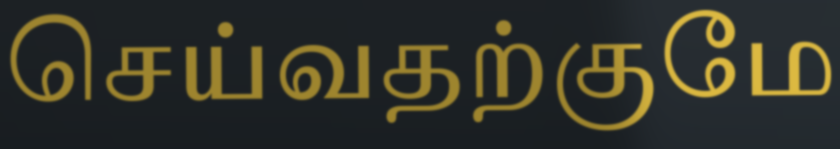
செய்வதற்குமே